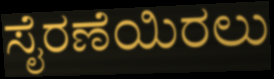
ಸೈರಣೆಯಿರಲು